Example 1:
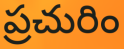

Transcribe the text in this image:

ప్రచురిం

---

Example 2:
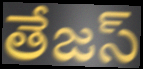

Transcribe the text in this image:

తేజస్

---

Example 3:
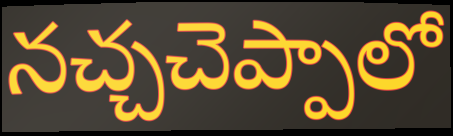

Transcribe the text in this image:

నచ్చచెప్పాలో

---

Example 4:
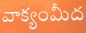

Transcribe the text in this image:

వాక్యంమీద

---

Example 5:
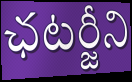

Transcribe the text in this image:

ఛటర్జీని